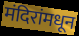
मंदिरांमधून